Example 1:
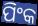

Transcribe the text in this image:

ପିଂକ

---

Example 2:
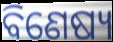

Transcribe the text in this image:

ବିଣେଷ୍ୟ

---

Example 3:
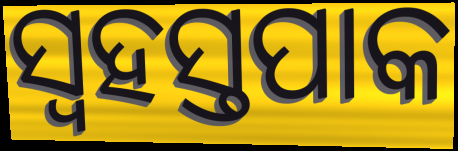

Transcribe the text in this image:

ସ୍ୱହସ୍ତପାକ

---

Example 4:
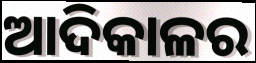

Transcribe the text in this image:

ଆଦିକାଳର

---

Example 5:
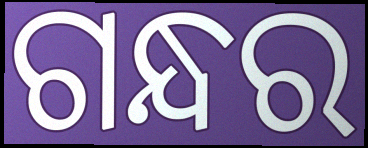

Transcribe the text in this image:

ଗନ୍ଧର